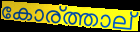
കോര്ത്താല്